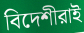
বিদেশীরাই